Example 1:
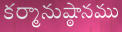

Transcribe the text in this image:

కర్మానుష్ఠానము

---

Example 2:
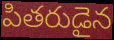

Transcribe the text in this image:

పితరుడైన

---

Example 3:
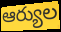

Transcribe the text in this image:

ఆర్యుల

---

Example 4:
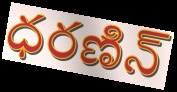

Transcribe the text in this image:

ధరణిన్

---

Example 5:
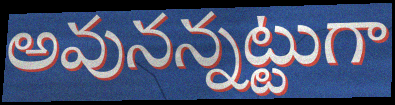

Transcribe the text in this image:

అవునన్నట్టుగా